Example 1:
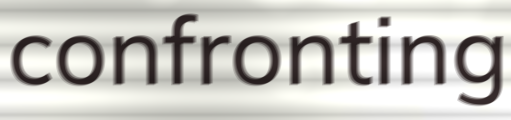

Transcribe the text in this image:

confronting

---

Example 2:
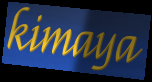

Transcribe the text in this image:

kimaya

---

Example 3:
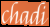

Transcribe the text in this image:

chadi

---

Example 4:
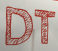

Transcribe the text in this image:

DT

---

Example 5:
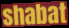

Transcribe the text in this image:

shabat